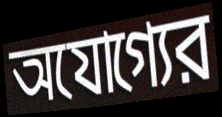
অযোগ্যের